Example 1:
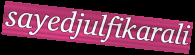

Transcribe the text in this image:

sayedjulfikarali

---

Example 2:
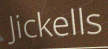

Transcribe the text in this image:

Jickells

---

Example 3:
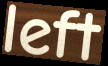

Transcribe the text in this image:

left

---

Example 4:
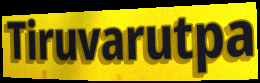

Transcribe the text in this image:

Tiruvarutpa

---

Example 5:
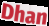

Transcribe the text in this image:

Dhan